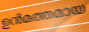
ഉൻമത്തമായ